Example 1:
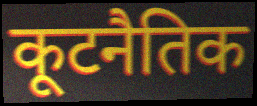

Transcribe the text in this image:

कूटनैतिक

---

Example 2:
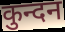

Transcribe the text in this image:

कुन्दन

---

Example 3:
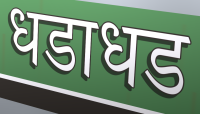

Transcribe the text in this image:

धडाधड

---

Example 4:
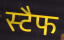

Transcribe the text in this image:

स्टैफ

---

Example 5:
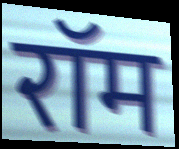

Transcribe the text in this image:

रॉम